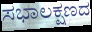
ಸಭಾಲಕ್ಷಣದ